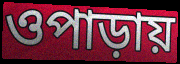
ওপাড়ায়